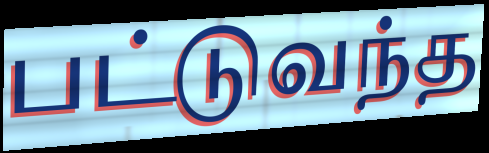
பட்டுவந்த